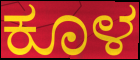
ಕೂಳ